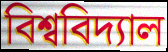
বিশ্ববিদ্যাল